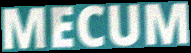
MECUM